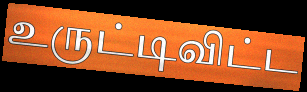
உருட்டிவிட்ட